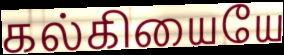
கல்கியையே